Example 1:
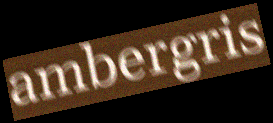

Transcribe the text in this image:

ambergris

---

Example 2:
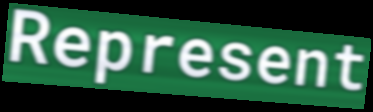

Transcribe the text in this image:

Represent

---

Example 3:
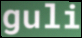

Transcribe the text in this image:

guli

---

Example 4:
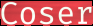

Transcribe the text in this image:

Coser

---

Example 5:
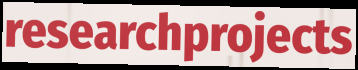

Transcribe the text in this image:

researchprojects